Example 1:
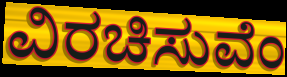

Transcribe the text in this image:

ವಿರಚಿಸುವೆಂ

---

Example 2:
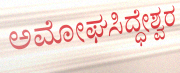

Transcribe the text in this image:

ಅಮೋಘಸಿದ್ಧೇಶ್ವರ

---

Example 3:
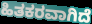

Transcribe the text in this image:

ಹಿತಕರವಾಗಿದೆ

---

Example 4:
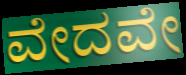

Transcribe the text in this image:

ವೇದವೇ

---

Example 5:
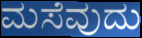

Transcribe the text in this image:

ಮಸೆವುದು